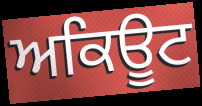
ਅਕਿਊਟ